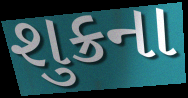
શુક્રના